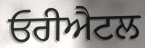
ਓਰੀਐਟਲ